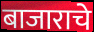
बाजाराचे